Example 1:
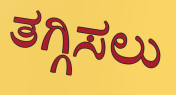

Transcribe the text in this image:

ತಗ್ಗಿಸಲು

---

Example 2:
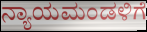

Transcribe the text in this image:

ನ್ಯಾಯಮಂಡಳಿಗೆ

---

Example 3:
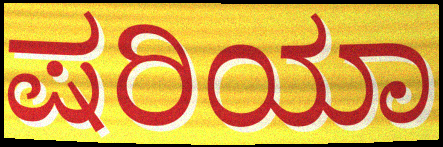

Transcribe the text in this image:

ಷರಿಯಾ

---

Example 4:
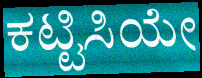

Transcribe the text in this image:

ಕಟ್ಟಿಸಿಯೇ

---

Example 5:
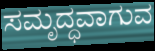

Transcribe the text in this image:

ಸಮೃದ್ಧವಾಗುವ